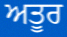
ਅਤੂਰ